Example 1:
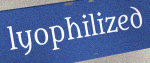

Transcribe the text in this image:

lyophilized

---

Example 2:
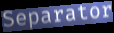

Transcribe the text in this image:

Separator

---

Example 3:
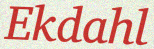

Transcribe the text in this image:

Ekdahl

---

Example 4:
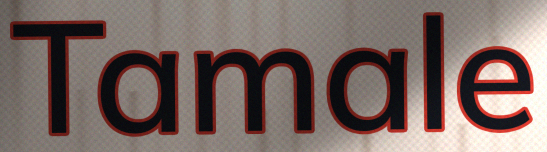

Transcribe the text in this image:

Tamale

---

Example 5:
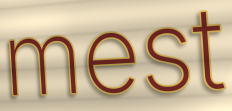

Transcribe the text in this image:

mest